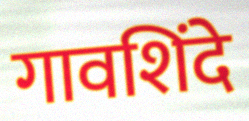
गावशिंदे